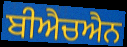
ਬੀਐਚਐਨ